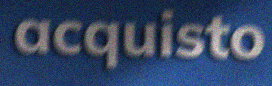
acquisto